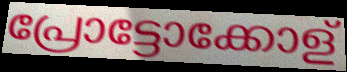
പ്രോട്ടോക്കോള്